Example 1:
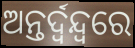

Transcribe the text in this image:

ଅନ୍ତର୍ଦ୍ୱନ୍ଦ୍ୱରେ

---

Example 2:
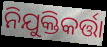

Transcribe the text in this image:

ନିଯୁକ୍ତିକର୍ତ୍ତା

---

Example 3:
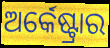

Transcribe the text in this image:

ଅର୍କେଷ୍ଟ୍ରାର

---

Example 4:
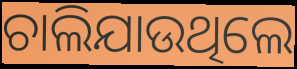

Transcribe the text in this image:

ଚାଲିଯାଉଥିଲେ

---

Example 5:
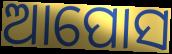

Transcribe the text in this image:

ଆପୋସ